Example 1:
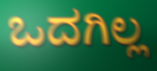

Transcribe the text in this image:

ಒದಗಿಲ್ಲ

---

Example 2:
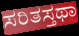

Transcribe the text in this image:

ಸರಿತಸ್ತಥಾ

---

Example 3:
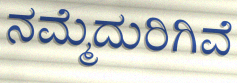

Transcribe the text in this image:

ನಮ್ಮೆದುರಿಗಿವೆ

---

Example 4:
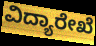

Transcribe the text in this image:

ವಿದ್ಯಾರೇಖೆ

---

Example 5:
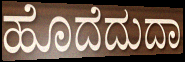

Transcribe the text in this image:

ಹೊದೆದುದಾ